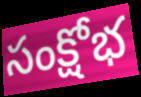
సంక్షోభ